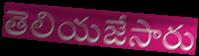
తెలియజేసారు